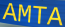
AMTA